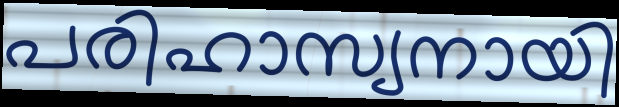
പരിഹാസ്യനായി